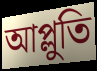
আপ্লুতি